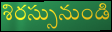
శిరస్సునుండి